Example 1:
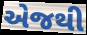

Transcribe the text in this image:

એજથી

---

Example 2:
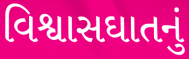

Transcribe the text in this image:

વિશ્વાસઘાતનું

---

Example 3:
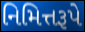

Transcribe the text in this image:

નિમિત્તરૂપે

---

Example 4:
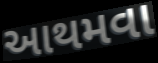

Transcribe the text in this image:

આથમવા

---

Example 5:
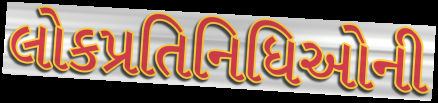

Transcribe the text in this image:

લોકપ્રતિનિધિઓની